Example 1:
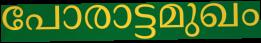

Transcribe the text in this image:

പോരാട്ടമുഖം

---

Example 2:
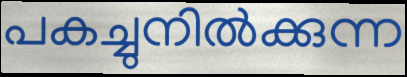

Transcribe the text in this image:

പകച്ചുനിൽക്കുന്ന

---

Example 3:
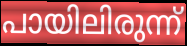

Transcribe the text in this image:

പായിലിരുന്ന്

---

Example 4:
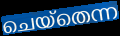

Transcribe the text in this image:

ചെയ്‌തെന്ന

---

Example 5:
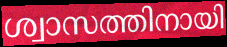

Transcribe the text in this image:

ശ്വാസത്തിനായി